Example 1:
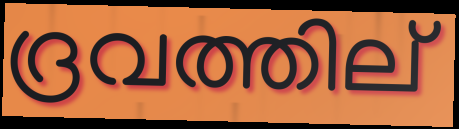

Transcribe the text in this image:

ദ്രവത്തില്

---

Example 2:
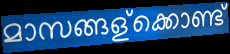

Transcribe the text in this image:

മാസങ്ങള്ക്കൊണ്ട്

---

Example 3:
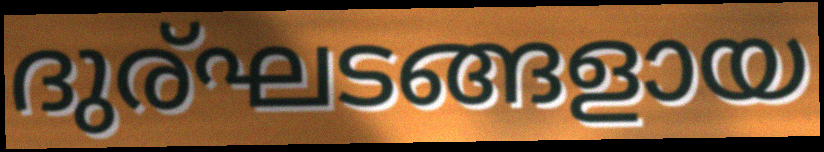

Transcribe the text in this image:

ദുര്ഘടങ്ങളായ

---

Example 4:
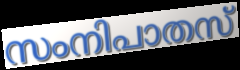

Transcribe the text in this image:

സംനിപാതസ്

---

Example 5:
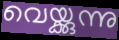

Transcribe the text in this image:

വെയ്ക്കുന്നു